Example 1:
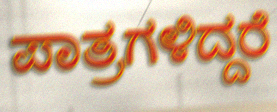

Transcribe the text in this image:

ಪಾತ್ರಗಳಿದ್ದರೆ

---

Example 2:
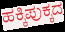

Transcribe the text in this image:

ಹಕ್ಕಿಪುಕ್ಕದ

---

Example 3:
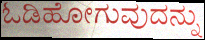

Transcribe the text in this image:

ಓಡಿಹೋಗುವುದನ್ನು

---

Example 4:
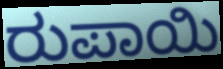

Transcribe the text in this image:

ರುಪಾಯಿ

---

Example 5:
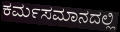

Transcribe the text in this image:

ಕರ್ಮಸಮಾನದಲ್ಲಿ